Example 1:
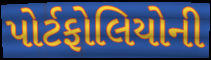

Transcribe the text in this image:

પોર્ટફોલિયોની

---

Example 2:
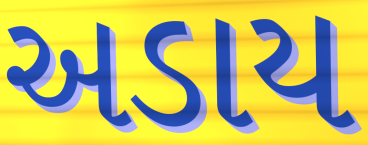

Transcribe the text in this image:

અડાય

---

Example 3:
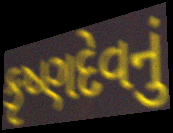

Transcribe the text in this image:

કૃષ્ણદેવનું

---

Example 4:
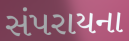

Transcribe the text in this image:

સંપરાયના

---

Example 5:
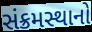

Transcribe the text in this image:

સંક્રમસ્થાનો